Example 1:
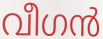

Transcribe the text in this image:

വീഗൻ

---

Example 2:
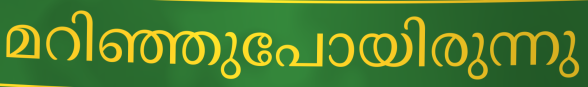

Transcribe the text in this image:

മറിഞ്ഞുപോയിരുന്നു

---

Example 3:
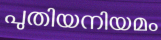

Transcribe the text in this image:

പുതിയനിയമം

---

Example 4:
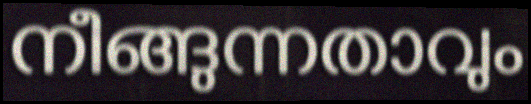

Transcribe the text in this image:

നീങ്ങുന്നതാവും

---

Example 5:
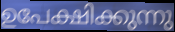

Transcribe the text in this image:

ഉപേക്ഷിക്കുന്നു